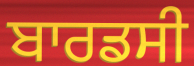
ਬਾਰਡਸੀ